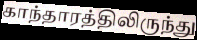
காந்தாரத்திலிருந்து